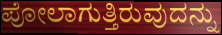
ಪೋಲಾಗುತ್ತಿರುವುದನ್ನು